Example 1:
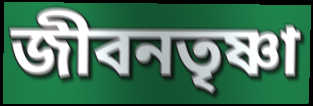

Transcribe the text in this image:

জীবনতৃষ্ণা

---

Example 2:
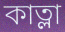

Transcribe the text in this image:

কাত্লা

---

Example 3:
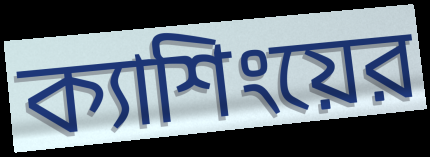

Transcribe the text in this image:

ক্যাশিংয়ের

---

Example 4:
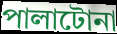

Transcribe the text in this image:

পালাটোনা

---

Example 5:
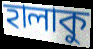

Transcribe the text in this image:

হালাকু